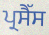
ਪ੍ਰਸੈੱਸ